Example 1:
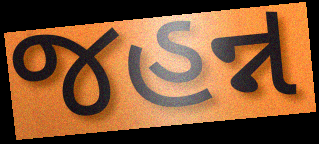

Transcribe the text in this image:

જહન્ન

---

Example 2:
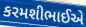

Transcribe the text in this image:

કરમશીભાઈએ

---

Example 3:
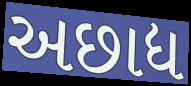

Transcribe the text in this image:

અછાદ્ય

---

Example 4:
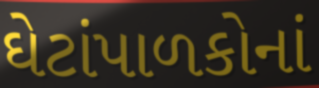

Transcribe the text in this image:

ઘેટાંપાળકોનાં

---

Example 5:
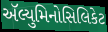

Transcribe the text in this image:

ઍલ્યુમિનોસિલિકેટ